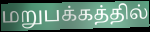
மறுபக்கத்தில்